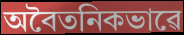
অবৈতনিকভাৱে